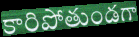
కారిపోతుండగా